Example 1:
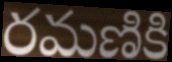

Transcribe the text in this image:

రమణికి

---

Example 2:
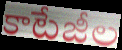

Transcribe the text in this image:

కాటేజీల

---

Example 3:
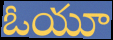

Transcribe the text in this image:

ఓయూ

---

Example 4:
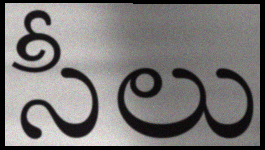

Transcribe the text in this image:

సీలు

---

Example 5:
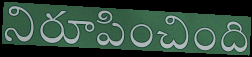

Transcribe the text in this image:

నిరూపించింది